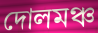
দোলমঞ্চ